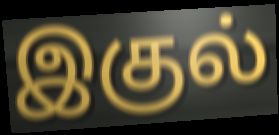
இகுல்